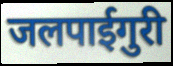
जलपाईगुरी